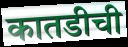
कातडीची